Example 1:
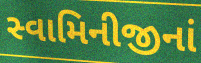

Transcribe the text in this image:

સ્વામિનીજીનાં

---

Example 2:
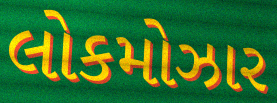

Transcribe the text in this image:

લોકમોઝાર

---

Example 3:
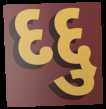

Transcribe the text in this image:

દદ્દુ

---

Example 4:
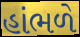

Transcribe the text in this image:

હાંભળે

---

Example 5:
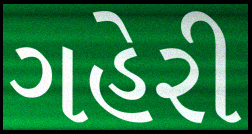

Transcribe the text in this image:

ગહેરી